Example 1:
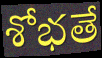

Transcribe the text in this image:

శోభతే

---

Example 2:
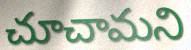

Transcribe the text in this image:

చూచామని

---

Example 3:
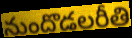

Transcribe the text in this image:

నుందొడలరీతి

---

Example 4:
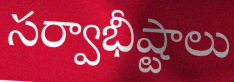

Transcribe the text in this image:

సర్వాభీష్టాలు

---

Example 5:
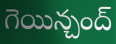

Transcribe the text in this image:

గెయిన్చంద్